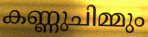
കണ്ണുചിമ്മും